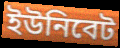
ইউনিবেট